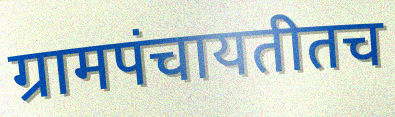
ग्रामपंचायतीतच